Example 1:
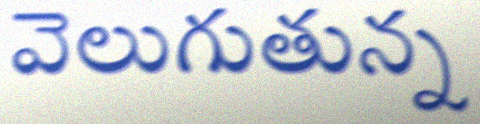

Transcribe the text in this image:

వెలుగుతున్న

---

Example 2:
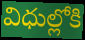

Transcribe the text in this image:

విధుల్లోకి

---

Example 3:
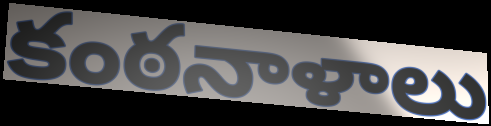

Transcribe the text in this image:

కంఠనాళాలు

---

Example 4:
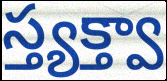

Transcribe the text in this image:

స్త్యక్త్వా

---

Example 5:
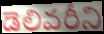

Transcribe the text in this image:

డెలివరీని